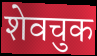
शेवचुक